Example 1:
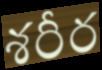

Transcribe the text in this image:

శరీర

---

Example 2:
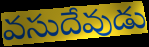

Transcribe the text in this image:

వసుదేవుడు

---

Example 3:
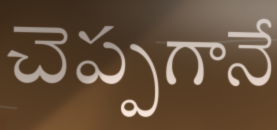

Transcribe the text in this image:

చెప్పగానే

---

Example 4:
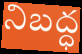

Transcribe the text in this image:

నిబద్ధ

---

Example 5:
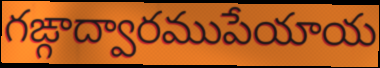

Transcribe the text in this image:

గఙ్గాద్వారముపేయాయ